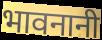
भावनानी